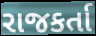
રાજકર્તા